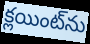
క్లయింట్‌ను